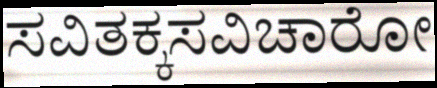
ಸವಿತಕ್ಕಸವಿಚಾರೋ